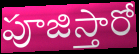
పూజిస్తారో